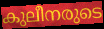
കുലീനരുടെ